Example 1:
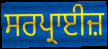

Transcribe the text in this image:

ਸਰਪ੍ਰਾਈਜ਼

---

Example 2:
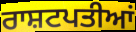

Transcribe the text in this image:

ਰਾਸ਼ਟਪਤੀਆਂ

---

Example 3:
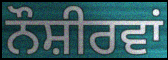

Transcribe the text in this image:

ਨੌਸ਼ੀਰਵਾਂ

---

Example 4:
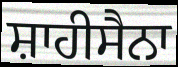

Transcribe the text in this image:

ਸ਼ਾਹੀਸੈਨਾ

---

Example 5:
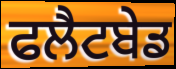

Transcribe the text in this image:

ਫਲੈਟਬੇਡ